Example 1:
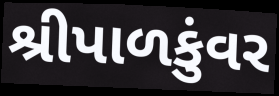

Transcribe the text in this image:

શ્રીપાળકુંવર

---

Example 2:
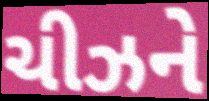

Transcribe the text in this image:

ચીઝને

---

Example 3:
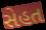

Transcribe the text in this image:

સેહત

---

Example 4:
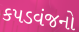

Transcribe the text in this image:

કપડવંજનો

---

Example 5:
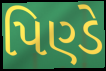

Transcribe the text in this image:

પિણ્ડે